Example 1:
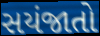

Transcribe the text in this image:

સયંજાતો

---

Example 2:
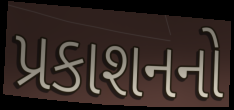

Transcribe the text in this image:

પ્રકાશનનો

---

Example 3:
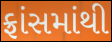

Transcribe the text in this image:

ફ્રાંસમાંથી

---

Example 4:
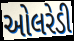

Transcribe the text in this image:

ઓલરેડી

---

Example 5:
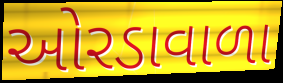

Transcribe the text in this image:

ઓરડાવાળા